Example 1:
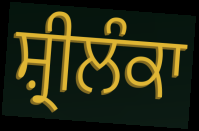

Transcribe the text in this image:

ਸ਼੍ਰੀਲੰਕਾ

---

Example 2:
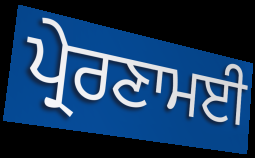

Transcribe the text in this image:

ਪ੍ਰੇਰਣਾਮਈ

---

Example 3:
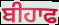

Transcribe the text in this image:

ਬੀਹਾਫ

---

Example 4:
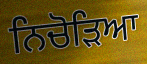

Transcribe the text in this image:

ਨਿਚੋੜਿਆ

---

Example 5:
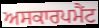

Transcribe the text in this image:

ਅਸਕਾਰਪਮੈਂਟ